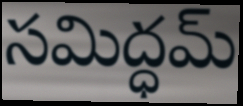
సమిద్ధమ్